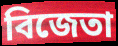
বিজেতা